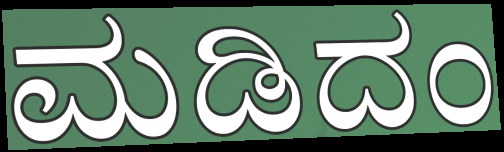
ಮಡಿದಂ